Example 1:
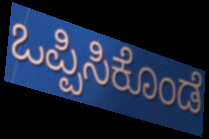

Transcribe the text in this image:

ಒಪ್ಪಿಸಿಕೊಂಡೆ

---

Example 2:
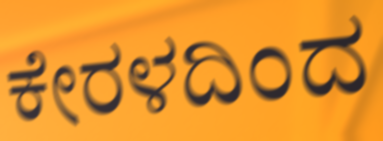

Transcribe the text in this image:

ಕೇರಳದಿಂದ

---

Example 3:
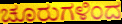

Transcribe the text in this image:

ಚೂರುಗಳಿಂದ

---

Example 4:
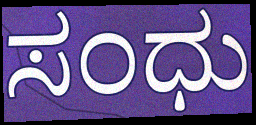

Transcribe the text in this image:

ಸಂಧು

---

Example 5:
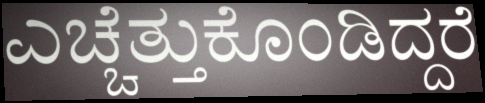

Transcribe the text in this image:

ಎಚ್ಚೆತ್ತುಕೊಂಡಿದ್ದರೆ